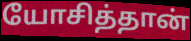
யோசித்தான்